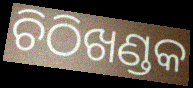
ଚିଠିଖଣ୍ଡକ